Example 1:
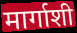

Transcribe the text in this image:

मार्गाशी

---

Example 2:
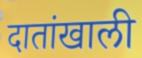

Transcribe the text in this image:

दातांखाली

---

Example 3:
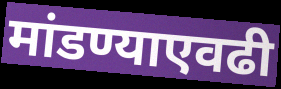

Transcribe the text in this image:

मांडण्याएवढी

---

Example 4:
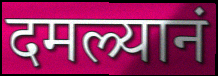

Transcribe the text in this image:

दमल्यानं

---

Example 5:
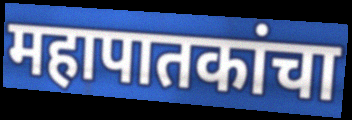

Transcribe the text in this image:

महापातकांचा